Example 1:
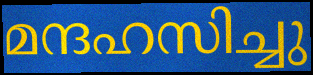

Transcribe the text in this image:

മന്ദഹസിച്ചു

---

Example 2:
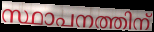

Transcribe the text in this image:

സ്ഥാപനത്തിന്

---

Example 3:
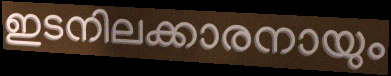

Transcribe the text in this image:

ഇടനിലക്കാരനായും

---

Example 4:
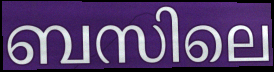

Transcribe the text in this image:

ബസിലെ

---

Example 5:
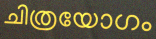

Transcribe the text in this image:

ചിത്രയോഗം